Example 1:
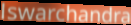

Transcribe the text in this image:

Iswarchandra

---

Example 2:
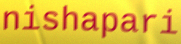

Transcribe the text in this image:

nishapari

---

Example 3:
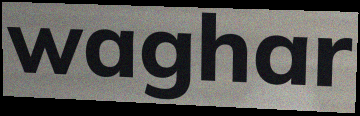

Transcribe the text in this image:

waghar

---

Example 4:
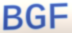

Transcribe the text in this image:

BGF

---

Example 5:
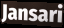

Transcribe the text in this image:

Jansari